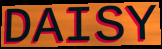
DAISY